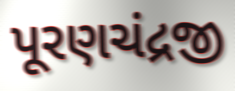
પૂરણચંદ્રજી